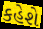
કહેશે